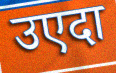
उएदा